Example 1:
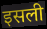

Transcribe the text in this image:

इसली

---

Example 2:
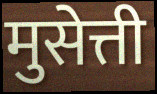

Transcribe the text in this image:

मुसेत्ती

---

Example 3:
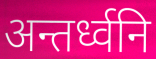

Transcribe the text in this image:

अन्तर्ध्वनि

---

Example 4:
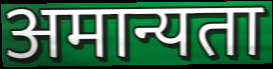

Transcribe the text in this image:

अमान्यता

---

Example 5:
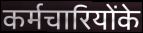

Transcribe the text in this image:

कर्मचारियोंके